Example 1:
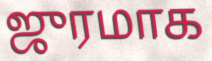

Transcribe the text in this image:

ஜுரமாக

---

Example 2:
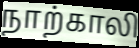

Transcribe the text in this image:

நாற்காலி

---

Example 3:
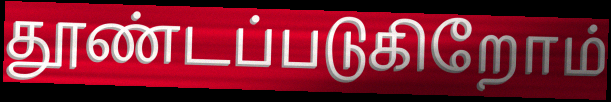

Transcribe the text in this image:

தூண்டப்படுகிறோம்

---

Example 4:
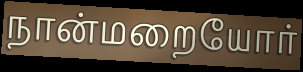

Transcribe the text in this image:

நான்மறையோர்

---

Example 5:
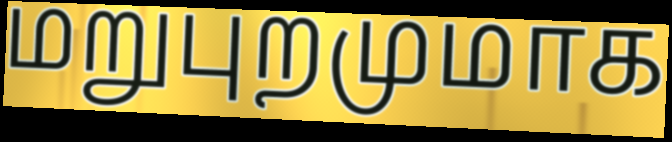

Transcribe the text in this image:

மறுபுறமுமாக